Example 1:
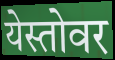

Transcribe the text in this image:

येस्तोवर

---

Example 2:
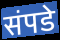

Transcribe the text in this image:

संपडे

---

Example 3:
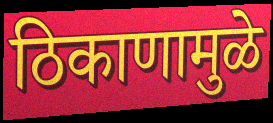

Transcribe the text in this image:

ठिकाणामुळे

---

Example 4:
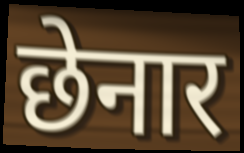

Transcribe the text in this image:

छेनार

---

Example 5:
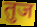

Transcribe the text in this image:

तुज